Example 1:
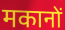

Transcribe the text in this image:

मकानों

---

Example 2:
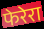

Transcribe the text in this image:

फेरेरा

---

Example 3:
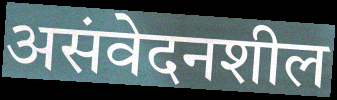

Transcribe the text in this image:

असंवेदनशील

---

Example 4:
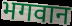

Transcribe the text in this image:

भगवान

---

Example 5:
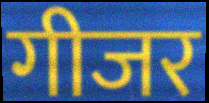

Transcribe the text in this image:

गीजर